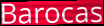
Barocas